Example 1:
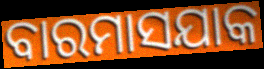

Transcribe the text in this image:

ବାରମାସଯାକ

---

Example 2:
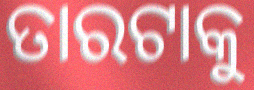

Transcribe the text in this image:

ତାରଟାକୁ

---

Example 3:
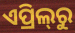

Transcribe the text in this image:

ଏପ୍ରିଲ୍‍ରୁ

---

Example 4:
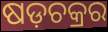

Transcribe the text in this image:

ଷଡ଼ଚକ୍ରର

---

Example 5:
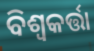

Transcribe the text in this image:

ବିଶ୍ୱକର୍ତ୍ତା